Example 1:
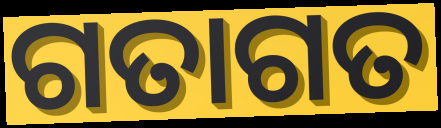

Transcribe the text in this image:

ଗତାଗତ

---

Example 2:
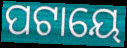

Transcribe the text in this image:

ପଟାୟେ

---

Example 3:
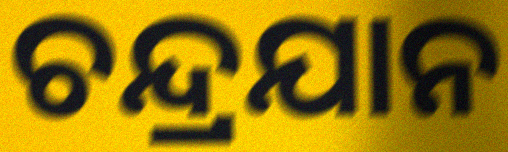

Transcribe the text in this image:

ଚନ୍ଦ୍ରଯାନ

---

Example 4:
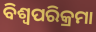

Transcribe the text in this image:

ବିଶ୍ୱପରିକ୍ରମା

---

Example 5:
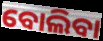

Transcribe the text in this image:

ବୋଲିବା